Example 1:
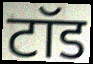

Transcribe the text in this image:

टॉड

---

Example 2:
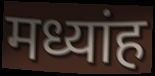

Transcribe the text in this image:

मध्यांह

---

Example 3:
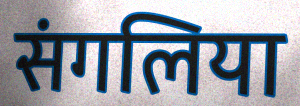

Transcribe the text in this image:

संगलिया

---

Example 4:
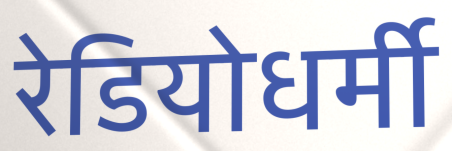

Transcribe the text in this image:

रेडियोधर्मी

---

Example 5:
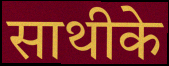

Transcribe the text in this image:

साथीके